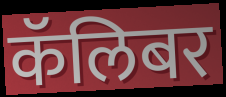
कॅलिबर